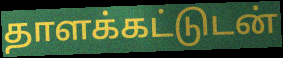
தாளக்கட்டுடன்